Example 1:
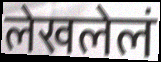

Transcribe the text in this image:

लेखलेलं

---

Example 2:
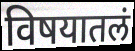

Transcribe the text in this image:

विषयातलं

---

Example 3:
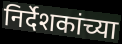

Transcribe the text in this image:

निर्देशकांच्या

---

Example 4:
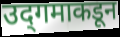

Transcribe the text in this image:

उद्‌गमाकडून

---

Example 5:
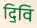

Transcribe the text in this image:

दि॒वि